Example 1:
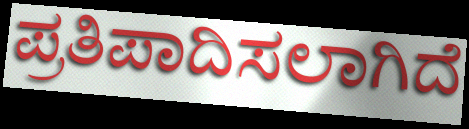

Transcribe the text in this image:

ಪ್ರತಿಪಾದಿಸಲಾಗಿದೆ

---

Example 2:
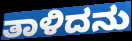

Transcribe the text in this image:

ತಾಳಿದನು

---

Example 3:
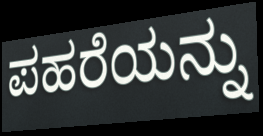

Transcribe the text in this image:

ಪಹರೆಯನ್ನು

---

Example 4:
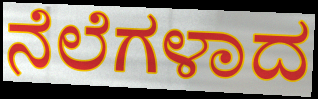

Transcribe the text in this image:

ನೆಲೆಗಳಾದ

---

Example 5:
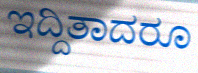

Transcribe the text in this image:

ಇದ್ದಿತಾದರೂ